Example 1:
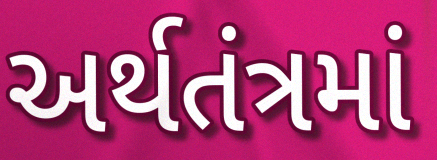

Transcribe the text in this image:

અર્થતંત્રમાં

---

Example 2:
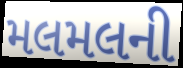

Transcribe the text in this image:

મલમલની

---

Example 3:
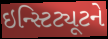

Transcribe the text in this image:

ઇન્સ્ટિટ્યૂટને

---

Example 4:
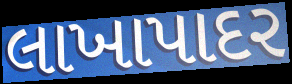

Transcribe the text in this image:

લાખાપાદર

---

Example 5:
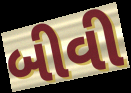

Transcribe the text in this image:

બીવી